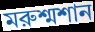
মরুশ্মশান